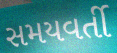
સમયવર્તી